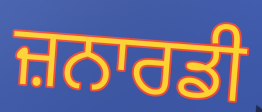
ਜ਼ਨਾਰਡੀ